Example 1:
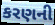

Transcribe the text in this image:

કરણની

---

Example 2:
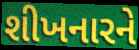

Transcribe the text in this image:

શીખનારને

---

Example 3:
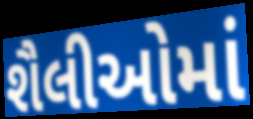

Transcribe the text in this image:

શૈલીઓમાં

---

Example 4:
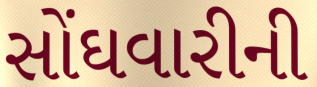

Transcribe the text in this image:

સોંઘવારીની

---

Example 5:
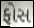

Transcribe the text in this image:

ફોસ